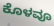
ಕೊಳವೂ